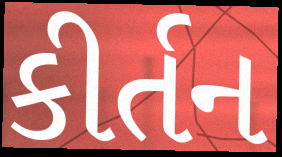
કીર્તન